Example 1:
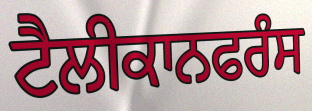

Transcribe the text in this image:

ਟੈਲੀਕਾਨਫਰੰਸ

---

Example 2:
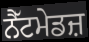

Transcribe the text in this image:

ਨੈੱਟਮੇਡਜ਼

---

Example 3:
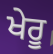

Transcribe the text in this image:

ਖੇਰੂ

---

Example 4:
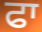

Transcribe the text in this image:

ਫਾ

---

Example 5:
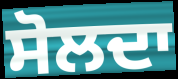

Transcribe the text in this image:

ਸੋਲਦਾ